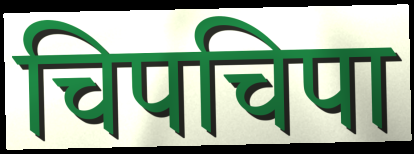
चिपचिपा